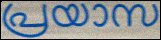
പ്രയാസ